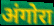
अंगोरा